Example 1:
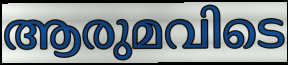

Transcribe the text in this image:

ആരുമവിടെ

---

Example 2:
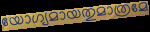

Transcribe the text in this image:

യോഗ്യമായതുമാത്രമേ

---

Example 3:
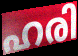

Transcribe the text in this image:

ഹരി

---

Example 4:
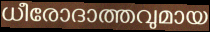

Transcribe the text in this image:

ധീരോദാത്തവുമായ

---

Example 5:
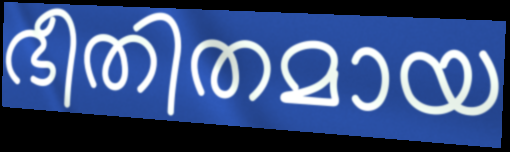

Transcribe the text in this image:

ഭീതിതമായ